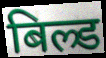
बिल्ड